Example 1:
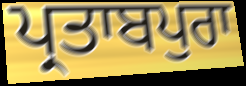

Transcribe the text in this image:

ਪ੍ਰਤਾਬਪੁਰਾ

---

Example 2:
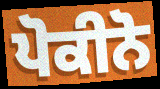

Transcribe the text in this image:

ਪੋਕੀਨੋ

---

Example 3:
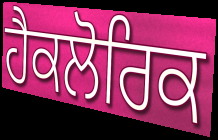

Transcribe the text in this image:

ਹੈਕਲੋਰਿਕ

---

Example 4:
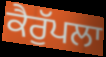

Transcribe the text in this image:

ਕੈਰੁੱਪਲਾ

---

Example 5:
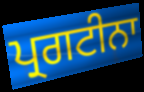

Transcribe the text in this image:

ਪ੍ਰਗਟੀਨਾ